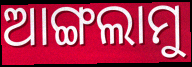
ଆଙ୍ଗଲାମୁ